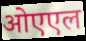
ओएएल